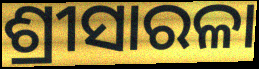
ଶ୍ରୀସାରଳା